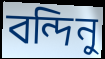
বন্দিনু